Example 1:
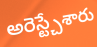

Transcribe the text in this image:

అరెస్ట్చేశారు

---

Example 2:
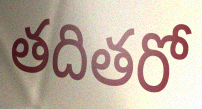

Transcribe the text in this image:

తదితరో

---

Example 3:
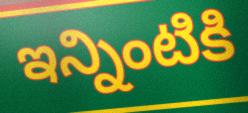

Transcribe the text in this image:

ఇన్నింటికి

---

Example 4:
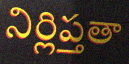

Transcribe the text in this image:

నిర్లిప్తతా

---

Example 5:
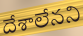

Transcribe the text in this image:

దేశాలేనని